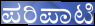
ಪರಿಪಾಟಿ